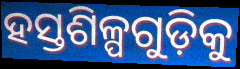
ହସ୍ତଶିଳ୍ପଗୁଡ଼ିକୁ